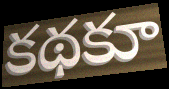
కథకూ